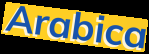
Arabica